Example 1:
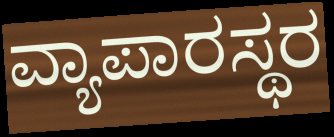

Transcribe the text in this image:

ವ್ಯಾಪಾರಸ್ಥರ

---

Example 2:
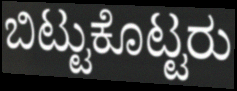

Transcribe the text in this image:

ಬಿಟ್ಟುಕೊಟ್ಟರು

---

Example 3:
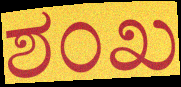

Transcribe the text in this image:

ಶಂಖ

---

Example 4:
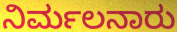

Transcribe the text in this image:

ನಿರ್ಮಲನಾರು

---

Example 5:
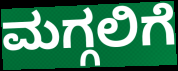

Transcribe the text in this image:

ಮಗ್ಗಲಿಗೆ